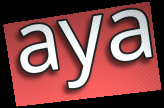
aya